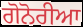
ਗੋਨੋਰੀਆ